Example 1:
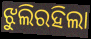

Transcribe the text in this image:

ଝୁଲିରହିଲା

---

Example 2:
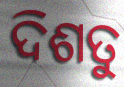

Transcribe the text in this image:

ଦିଶତୁ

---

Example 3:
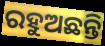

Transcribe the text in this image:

ରହୁଅଛନ୍ତି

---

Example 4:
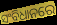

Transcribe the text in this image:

ସଂବିଧାନରେ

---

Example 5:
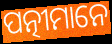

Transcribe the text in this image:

ପତ୍ନୀମାନେ